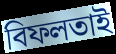
বিফলতাই